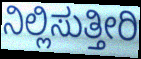
ನಿಲ್ಲಿಸುತ್ತೀರಿ